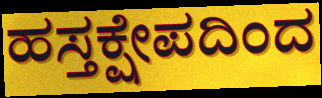
ಹಸ್ತಕ್ಷೇಪದಿಂದ